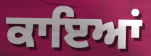
ਕਾਇਆਂ